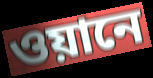
ওয়ানে